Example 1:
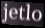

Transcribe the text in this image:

jetlo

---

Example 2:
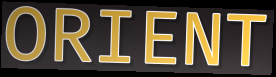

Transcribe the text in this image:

ORIENT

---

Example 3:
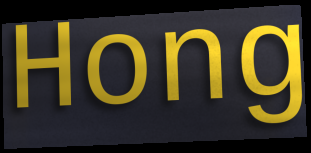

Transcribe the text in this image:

Hong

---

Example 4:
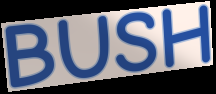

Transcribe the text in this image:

BUSH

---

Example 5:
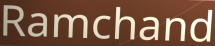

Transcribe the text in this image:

Ramchand